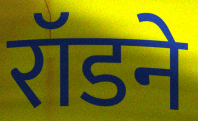
रॉडने